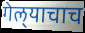
गेल्याचाच